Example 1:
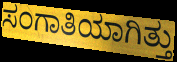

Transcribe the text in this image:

ಸಂಗಾತಿಯಾಗಿತ್ತು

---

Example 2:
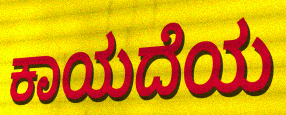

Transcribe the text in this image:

ಕಾಯದೆಯ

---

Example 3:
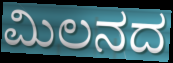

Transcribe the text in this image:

ಮಿಲನದ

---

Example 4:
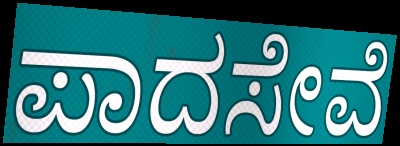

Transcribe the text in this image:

ಪಾದಸೇವೆ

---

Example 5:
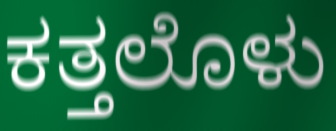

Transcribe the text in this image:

ಕತ್ತಲೊಳು